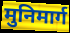
मुनिमार्ग